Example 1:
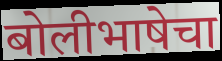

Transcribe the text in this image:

बोलीभाषेचा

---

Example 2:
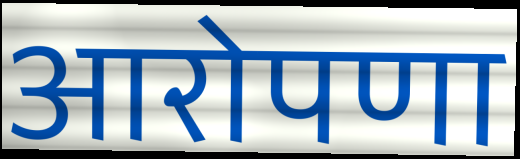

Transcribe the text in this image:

आरोपणा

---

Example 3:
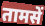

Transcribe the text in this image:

तामसें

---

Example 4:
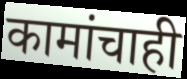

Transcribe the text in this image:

कामांचाही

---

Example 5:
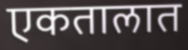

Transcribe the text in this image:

एकतालात